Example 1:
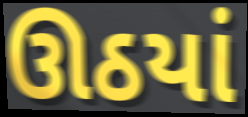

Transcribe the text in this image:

ઊઠયાં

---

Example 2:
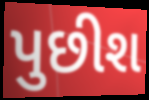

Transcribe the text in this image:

પુછીશ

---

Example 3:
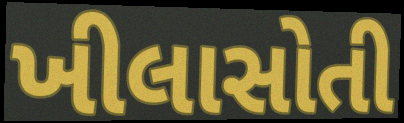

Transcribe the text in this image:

ખીલાસોતી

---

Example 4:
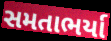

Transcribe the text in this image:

સમતાભર્યા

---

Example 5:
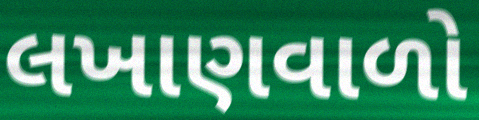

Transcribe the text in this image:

લખાણવાળો